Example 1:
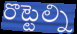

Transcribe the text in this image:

రొట్టెల్ని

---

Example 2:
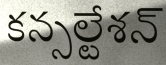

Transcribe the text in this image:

కన్సల్టేశన్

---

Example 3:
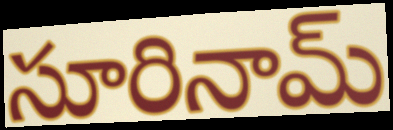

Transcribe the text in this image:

సూరినామ్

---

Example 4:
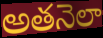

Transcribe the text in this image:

అతనెలా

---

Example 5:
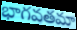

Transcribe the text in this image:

భాగవతమా